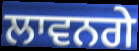
ਲਾਵਨਗੇ